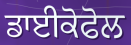
ਡਾਈਕੋਫੋਲ